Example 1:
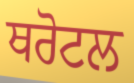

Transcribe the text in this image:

ਥਰੋਟਲ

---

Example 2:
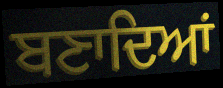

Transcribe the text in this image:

ਬਣਾਦਿਆਂ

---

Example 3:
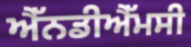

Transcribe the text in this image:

ਐੱਨਡੀਐੱਮਸੀ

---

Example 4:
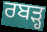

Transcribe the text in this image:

ਰਬੜ੍ਹ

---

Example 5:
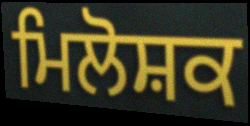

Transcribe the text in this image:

ਮਿਲੋਸ਼ਕ